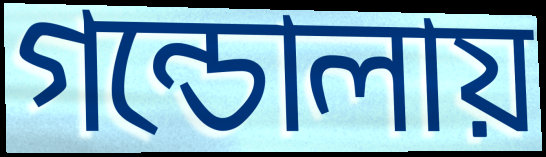
গন্ডোলায়